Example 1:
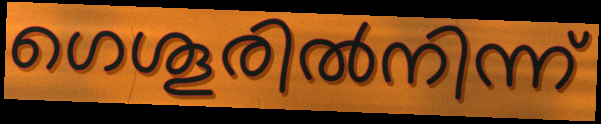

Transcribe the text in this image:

ഗെശൂരിൽനിന്ന്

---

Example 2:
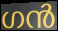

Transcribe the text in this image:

ഗൻ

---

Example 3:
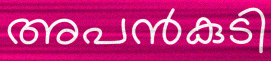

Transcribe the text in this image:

അപൻകുടി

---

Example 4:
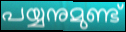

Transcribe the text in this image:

പയ്യനുമുണ്ട്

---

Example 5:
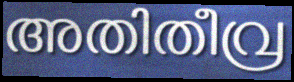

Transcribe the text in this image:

അതിതീവ്ര